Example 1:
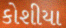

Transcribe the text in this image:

કોશીયા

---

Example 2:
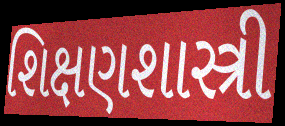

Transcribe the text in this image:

શિક્ષણશાસ્ત્રી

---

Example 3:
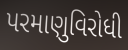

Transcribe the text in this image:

પરમાણુવિરોધી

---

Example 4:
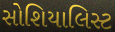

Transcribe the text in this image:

સોશિયાલિસ્ટ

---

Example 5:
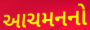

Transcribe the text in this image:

આચમનનો